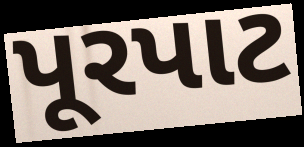
પૂરપાટ